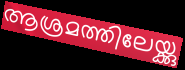
ആശ്രമത്തിലേയ്ക്കു